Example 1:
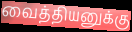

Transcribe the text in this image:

வைத்தியனுக்கு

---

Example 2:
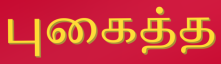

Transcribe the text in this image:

புகைத்த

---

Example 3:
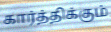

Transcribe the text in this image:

கார்த்திக்கும்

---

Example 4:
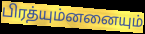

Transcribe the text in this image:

பிரத்யும்னனையும்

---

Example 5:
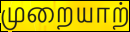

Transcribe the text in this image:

முறையாற்